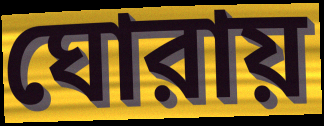
ঘোরায়